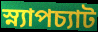
স্ন্যাপচ্যাট